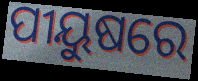
ପୀୟୁଷରେ